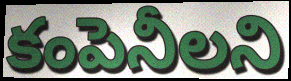
కంపెనీలని